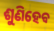
ଶୁଣିହେବ